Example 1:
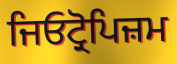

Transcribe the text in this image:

ਜਿਓਟ੍ਰੋਪਿਜ਼ਮ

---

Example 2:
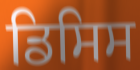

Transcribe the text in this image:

ਡਿਸਿਸ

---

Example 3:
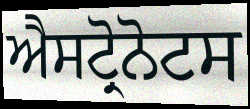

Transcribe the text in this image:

ਐਸਟ੍ਰੋਨੋਟਸ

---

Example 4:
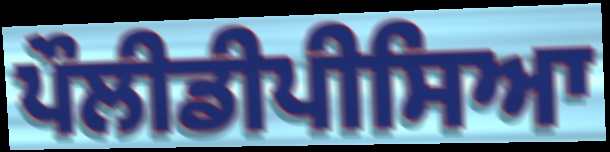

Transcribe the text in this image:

ਪੌਲੀਡੀਪੀਸਿਆ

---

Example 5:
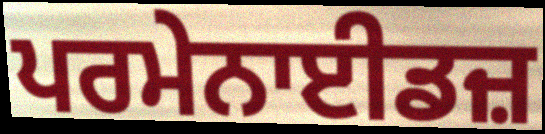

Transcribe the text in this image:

ਪਰਮੇਨਾਈਡਜ਼